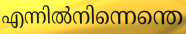
എന്നിൽനിന്നെന്തെ